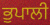
ਭੁਪਾਲੀ